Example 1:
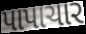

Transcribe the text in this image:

પાપાચાર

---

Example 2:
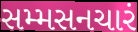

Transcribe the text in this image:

સમ્મસનચારં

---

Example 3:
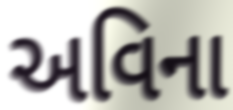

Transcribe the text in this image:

અવિના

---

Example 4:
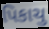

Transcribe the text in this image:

પિકાચુ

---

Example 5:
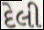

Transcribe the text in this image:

દેલી